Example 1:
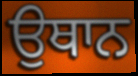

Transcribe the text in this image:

ਉਥਾਨ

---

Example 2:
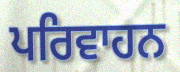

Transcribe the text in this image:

ਪਰਿਵਾਹਨ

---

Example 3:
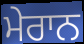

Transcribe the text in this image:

ਮੇਰਾਨ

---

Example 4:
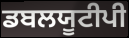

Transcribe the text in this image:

ਡਬਲਯੂਟੀਪੀ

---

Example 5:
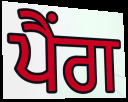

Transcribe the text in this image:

ਪੈਂਗ